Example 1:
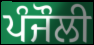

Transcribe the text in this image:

ਪੰਜੌਲੀ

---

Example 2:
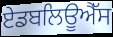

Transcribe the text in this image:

ਏਡਬਲਿਊਐੱਸ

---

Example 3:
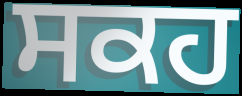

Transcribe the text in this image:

ਸਕਹ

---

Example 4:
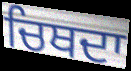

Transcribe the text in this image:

ਚਿਥਦਾ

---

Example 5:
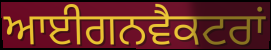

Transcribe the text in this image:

ਆਈਗਨਵੈਕਟਰਾਂ